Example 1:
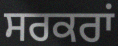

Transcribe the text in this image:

ਸਰਕਰਾਂ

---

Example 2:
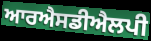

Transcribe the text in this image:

ਆਰਐਸਡੀਐਲਪੀ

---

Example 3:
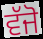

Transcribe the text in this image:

ਵੱਜੋ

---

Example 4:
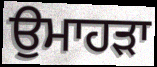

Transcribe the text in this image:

ਉਮਾਹੜਾ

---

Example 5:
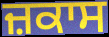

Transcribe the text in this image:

ਜ਼ਕਾਸ